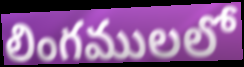
లింగములలో